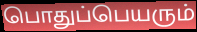
பொதுப்பெயரும்